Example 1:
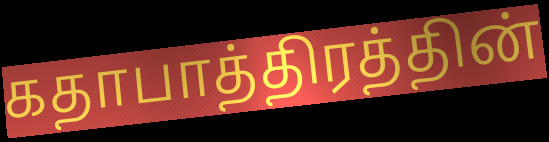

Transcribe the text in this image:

கதாபாத்திரத்தின்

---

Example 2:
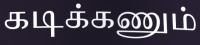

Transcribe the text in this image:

கடிக்கணும்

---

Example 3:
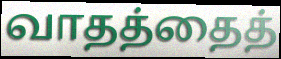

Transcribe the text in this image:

வாதத்தைத்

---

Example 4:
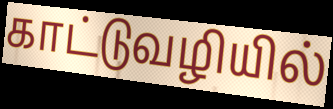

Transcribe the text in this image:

காட்டுவழியில்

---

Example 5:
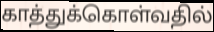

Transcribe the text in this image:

காத்துக்கொள்வதில்